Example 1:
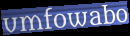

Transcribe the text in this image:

umfowabo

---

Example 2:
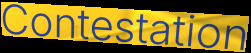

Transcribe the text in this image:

Contestation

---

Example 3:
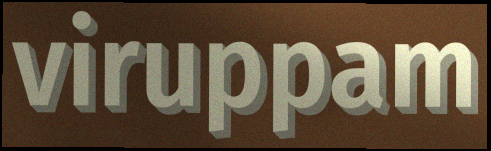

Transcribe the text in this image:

viruppam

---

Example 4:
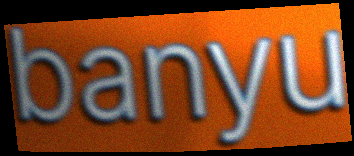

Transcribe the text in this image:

banyu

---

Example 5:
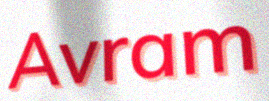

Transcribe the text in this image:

Avram